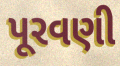
પૂરવણી